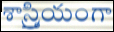
శాస్ర్తియంగా